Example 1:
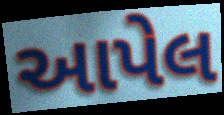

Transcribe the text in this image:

આપેલ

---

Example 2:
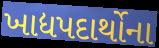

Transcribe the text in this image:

ખાદ્યપદાર્થોના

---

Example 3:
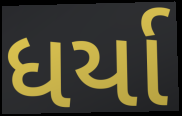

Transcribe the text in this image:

ધર્યા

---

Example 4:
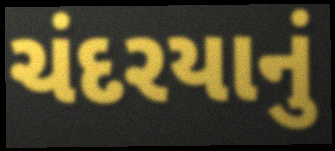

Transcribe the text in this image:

ચંદરયાનું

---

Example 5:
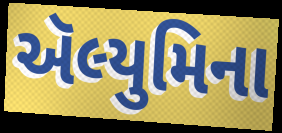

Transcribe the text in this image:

ઍલ્યુમિના